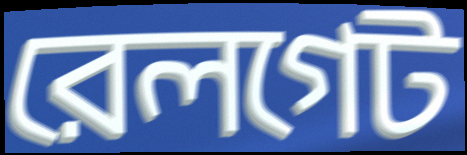
রেলগেট